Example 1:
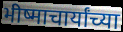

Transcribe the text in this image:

भीष्माचार्यांच्या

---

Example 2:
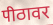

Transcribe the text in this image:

पीठावर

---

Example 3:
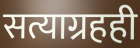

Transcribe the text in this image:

सत्याग्रहही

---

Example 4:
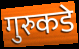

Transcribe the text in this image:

गुरुकडे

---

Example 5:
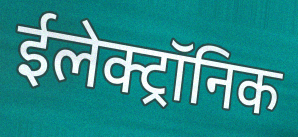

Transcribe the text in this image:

ईलेक्ट्रॉनिक